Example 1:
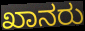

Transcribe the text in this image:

ಖಾನರು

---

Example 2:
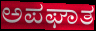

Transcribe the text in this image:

ಅಪಘಾತ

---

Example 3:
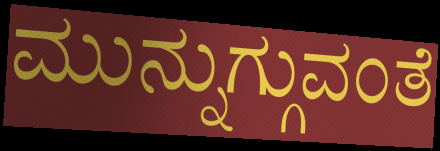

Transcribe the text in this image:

ಮುನ್ನುಗ್ಗುವಂತೆ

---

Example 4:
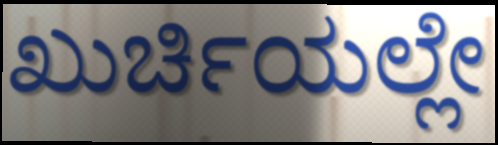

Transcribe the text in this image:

ಖುರ್ಚಿಯಲ್ಲೇ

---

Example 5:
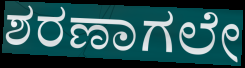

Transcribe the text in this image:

ಶರಣಾಗಲೇ